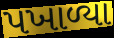
પખાળ્યા